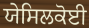
ਯੇਸਿਲਕੋਈ